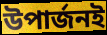
উপার্জনই